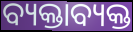
ବ୍ୟକ୍ତାବ୍ୟକ୍ତ